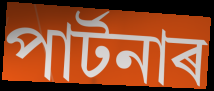
পাৰ্টনাৰ